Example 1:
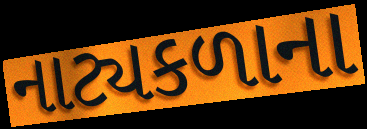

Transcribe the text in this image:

નાટ્યકળાના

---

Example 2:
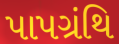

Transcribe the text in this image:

પાપગ્રંથિ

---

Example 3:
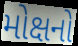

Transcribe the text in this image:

મોક્ષનો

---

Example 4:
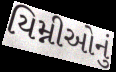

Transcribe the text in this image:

યિમ્નીઓનું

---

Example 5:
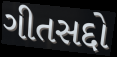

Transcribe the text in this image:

ગીતસદ્દો